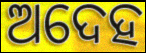
ଅଦେହ